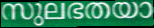
സുലഭതയാ